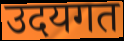
उदयगत